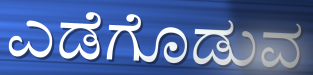
ಎಡೆಗೊಡುವ